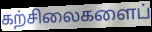
கற்சிலைகளைப்